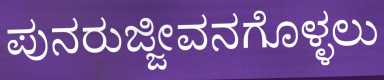
ಪುನರುಜ್ಜೀವನಗೊಳ್ಳಲು